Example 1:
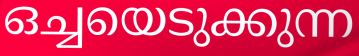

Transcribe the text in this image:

ഒച്ചയെടുക്കുന്ന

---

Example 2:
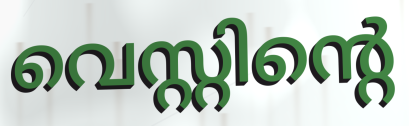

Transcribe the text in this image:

വെസ്റ്റിന്റെ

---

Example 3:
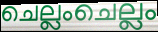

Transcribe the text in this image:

ചെല്ലംചെല്ലം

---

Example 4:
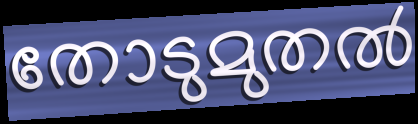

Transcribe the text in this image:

തോടുമുതൽ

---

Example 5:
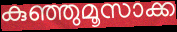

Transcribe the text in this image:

കുഞ്ഞുമൂസാക്ക